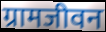
ग्रामजीवन